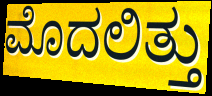
ಮೊದಲಿತ್ತು